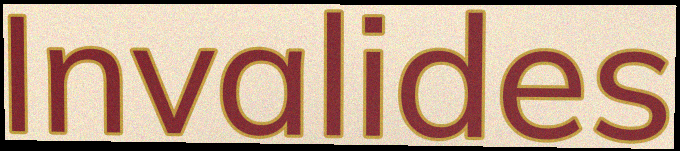
Invalides